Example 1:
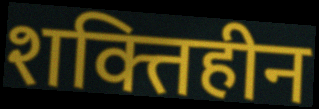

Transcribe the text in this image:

शक्तिहीन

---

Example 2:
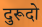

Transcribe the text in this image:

दुरूदो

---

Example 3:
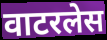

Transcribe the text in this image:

वाटरलेस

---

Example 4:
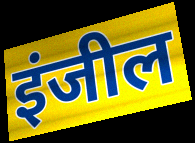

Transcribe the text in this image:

इंजील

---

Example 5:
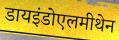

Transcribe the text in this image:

डायइंडोएलमीथेन